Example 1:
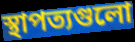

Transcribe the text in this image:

স্থাপত্যগুলো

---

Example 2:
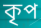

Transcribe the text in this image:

কৃপ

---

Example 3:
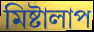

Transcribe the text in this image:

মিষ্টালাপ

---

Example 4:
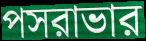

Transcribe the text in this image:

পসরাভার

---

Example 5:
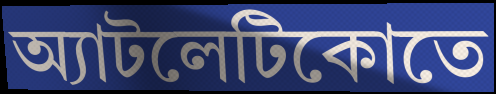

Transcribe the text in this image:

অ্যাটলেটিকোতে